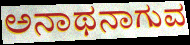
ಅನಾಥನಾಗುವ